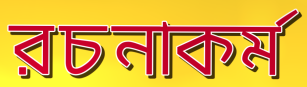
রচনাকর্ম